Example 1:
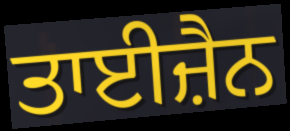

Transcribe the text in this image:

ਤਾਈਜ਼ੈਨ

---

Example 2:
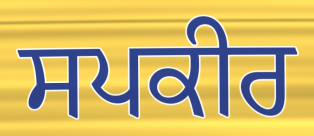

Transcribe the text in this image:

ਸਪਕੀਰ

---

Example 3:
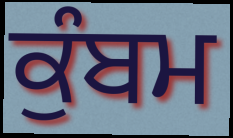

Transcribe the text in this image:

ਕੁੰਬਮ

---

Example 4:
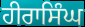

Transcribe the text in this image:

ਹੀਰਾਸਿੰਘ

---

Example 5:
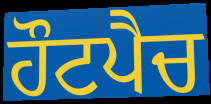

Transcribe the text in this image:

ਹੌਟਪੈਚ